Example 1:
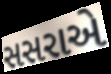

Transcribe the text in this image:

સસરાએ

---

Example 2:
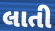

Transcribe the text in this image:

લાતી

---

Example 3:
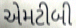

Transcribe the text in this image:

એમટીબી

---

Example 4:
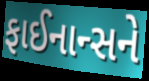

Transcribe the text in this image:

ફાઈનાન્સને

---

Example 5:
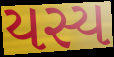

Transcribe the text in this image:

યસ્ય